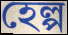
হেল্প